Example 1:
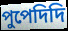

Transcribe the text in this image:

পুপেদিদি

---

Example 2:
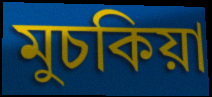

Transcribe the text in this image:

মুচকিয়া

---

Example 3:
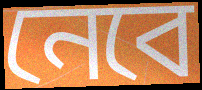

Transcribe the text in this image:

নেবে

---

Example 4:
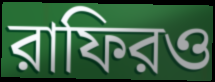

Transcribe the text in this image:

রাফিরও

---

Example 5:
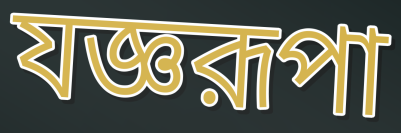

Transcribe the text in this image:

যজ্ঞরূপা